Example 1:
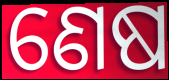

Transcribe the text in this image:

ଣେଷ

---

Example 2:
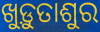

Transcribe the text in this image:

ଖୁଡ଼ୁତାଶୁର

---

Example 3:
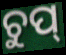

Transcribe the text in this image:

ଚୁପ୍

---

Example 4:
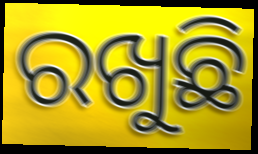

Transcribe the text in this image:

ରଖୁଛି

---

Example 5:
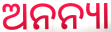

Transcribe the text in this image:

ଅନନ୍ୟା